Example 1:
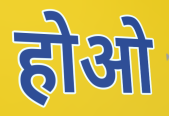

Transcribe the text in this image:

होओ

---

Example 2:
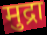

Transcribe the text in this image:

मुद्रा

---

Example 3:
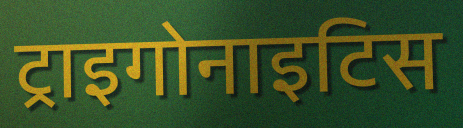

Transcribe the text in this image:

ट्राइगोनाइटिस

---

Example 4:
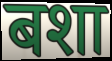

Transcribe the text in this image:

बशा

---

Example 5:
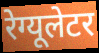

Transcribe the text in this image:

रेग्यूलेटर